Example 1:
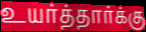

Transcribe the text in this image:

உயர்த்தார்க்கு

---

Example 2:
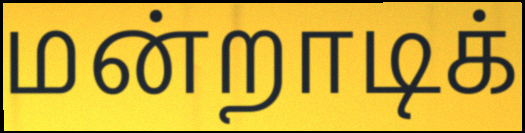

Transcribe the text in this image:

மன்றாடிக்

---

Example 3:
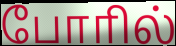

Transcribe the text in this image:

போரில்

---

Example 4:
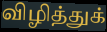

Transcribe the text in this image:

விழித்துக்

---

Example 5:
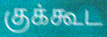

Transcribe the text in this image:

குக்கூட